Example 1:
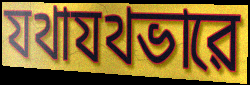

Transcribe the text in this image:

যথাযথভাৱে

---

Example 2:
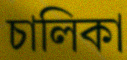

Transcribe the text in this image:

চালিকা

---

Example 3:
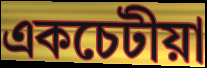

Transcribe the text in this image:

একচেটীয়া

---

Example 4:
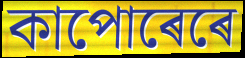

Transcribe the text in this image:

কাপোৰেৰে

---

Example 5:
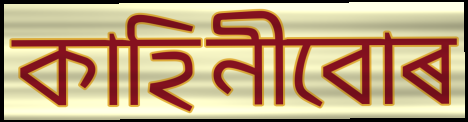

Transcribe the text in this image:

কাহিনীবোৰ